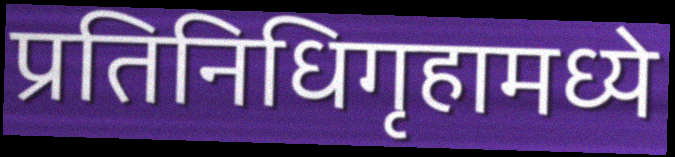
प्रतिनिधिगृहामध्ये